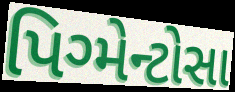
પિગ્મેન્ટોસા